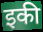
इकी